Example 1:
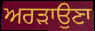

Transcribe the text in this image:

ਅਰੜਾਉਣਾ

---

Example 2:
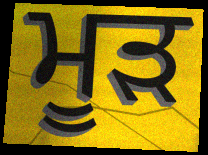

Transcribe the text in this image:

ਮੂੜ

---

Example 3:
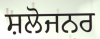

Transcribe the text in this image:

ਸ਼ਲੋਜਨਰ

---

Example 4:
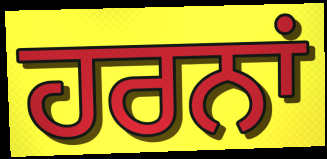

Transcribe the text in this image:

ਹਰਨਾਂ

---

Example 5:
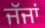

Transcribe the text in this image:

ਜੱਜਾਂ